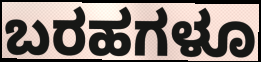
ಬರಹಗಳೂ